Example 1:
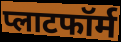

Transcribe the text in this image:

प्लाटफॉर्म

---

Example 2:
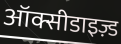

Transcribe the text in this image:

ऑक्सीडाइज़्ड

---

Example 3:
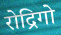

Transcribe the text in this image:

रोद्रिगो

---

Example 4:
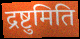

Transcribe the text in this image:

द्रष्टुमिति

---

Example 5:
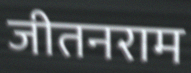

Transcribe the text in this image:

जीतनराम